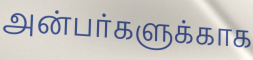
அன்பர்களுக்காக